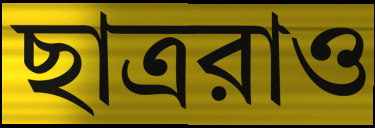
ছাত্ররাও